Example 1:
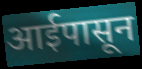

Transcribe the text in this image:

आईपासून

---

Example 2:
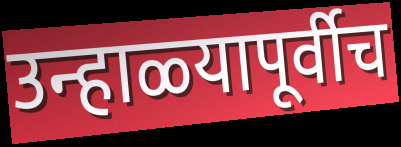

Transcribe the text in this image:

उन्हाळ्यापूर्वीच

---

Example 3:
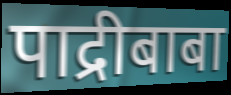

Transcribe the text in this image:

पाद्रीबाबा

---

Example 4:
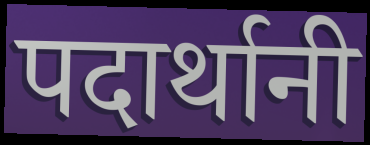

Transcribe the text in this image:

पदार्थानी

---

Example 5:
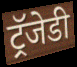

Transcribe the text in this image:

ट्रॅजेडी